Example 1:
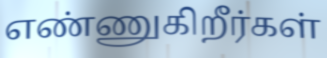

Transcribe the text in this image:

எண்ணுகிறீர்கள்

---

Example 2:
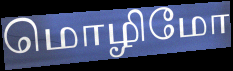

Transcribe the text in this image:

மொழிமோ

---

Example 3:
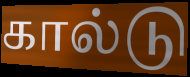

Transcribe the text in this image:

கால்டு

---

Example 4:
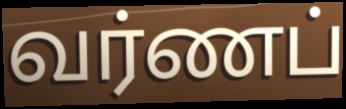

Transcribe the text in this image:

வர்ணப்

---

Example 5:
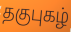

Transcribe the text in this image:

தகுபுகழ்